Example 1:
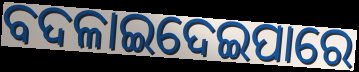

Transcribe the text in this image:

ବଦଳାଇଦେଇପାରେ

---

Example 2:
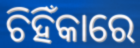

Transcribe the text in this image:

ଚିହିଁକାରେ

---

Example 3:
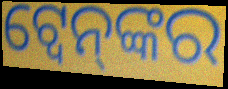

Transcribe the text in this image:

ଟ୍ୱେନ୍‌ଙ୍କର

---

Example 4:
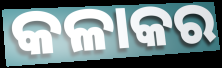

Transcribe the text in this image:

କଳାକର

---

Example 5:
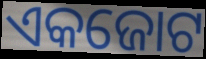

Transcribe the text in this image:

ଏକଜୋଟ